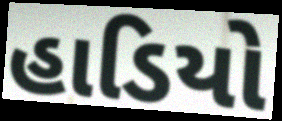
હાડિયો